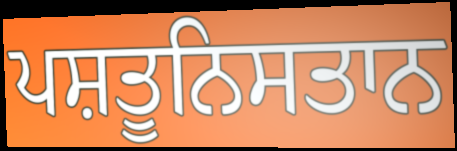
ਪਸ਼ਤੂਨਿਸਤਾਨ